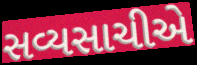
સવ્યસાચીએ